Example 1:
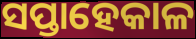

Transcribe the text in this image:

ସପ୍ତାହେକାଳ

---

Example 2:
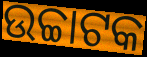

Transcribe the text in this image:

ଉଚ୍ଚାଟକ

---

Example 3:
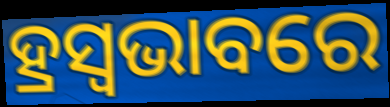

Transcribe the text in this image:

ହ୍ରସ୍ୱଭାବରେ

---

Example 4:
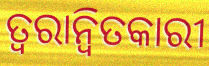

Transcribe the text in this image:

ତ୍ୱରାନ୍ୱିତକାରୀ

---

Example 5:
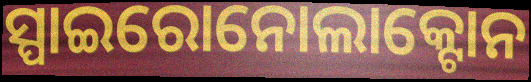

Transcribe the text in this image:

ସ୍ପାଇରୋନୋଲାକ୍ଟୋନ